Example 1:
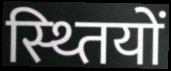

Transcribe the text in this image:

स्थ्तियों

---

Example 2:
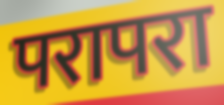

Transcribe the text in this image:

परापरा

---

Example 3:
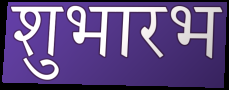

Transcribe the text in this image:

शुभारभ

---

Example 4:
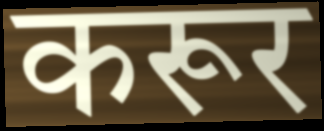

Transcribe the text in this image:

करूर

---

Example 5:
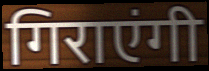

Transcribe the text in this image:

गिराएंगी